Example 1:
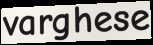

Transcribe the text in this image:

varghese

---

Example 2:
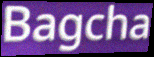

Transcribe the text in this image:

Bagcha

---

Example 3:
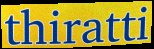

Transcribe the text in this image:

thiratti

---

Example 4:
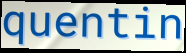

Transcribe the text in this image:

quentin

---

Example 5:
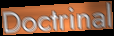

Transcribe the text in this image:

Doctrinal